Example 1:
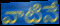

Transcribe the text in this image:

వాటినే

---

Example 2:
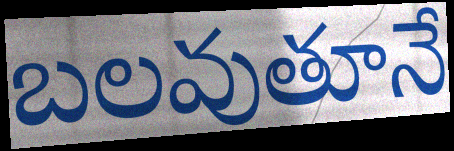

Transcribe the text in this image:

బలవుతూనే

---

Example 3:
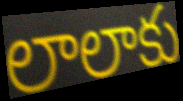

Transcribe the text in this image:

లాలాకు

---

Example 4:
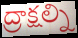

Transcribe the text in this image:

ద్రాక్షల్ని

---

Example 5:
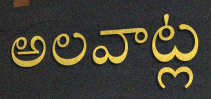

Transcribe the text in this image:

అలవాట్ల